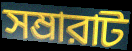
সম্রারাট